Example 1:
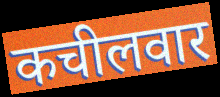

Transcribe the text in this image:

कचीलवार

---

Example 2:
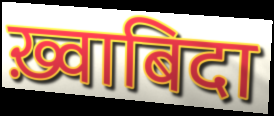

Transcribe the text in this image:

ख़्वाबिदा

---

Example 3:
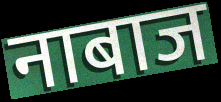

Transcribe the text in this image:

नाबाज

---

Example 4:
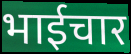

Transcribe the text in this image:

भाईचार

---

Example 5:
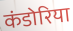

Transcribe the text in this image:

कंडोरिया